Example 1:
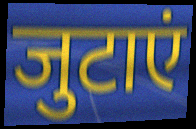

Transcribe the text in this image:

जुटाएं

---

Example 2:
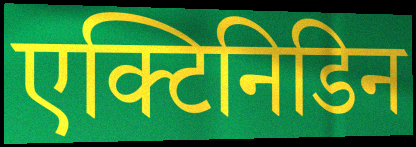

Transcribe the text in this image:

एक्टिनिडिन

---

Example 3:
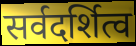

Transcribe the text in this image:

सर्वदर्शित्व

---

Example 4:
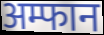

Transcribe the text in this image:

अम्‍फान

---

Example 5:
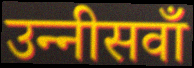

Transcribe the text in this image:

उन्‍नीसवाँ